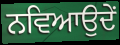
ਨਵਿਆਉਦੇਂ